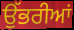
ਉੱਭਰੀਆਂ